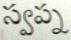
స్వప్న